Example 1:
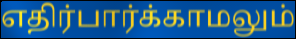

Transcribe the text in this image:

எதிர்பார்க்காமலும்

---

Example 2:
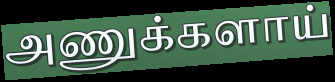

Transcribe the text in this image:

அணுக்களாய்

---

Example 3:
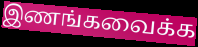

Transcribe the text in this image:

இணங்கவைக்க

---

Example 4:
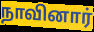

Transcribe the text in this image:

நாவினார்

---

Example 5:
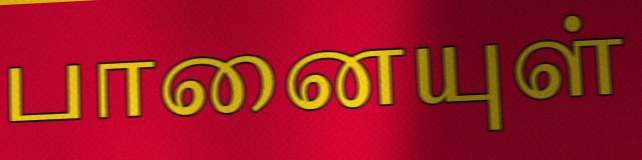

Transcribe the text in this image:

பானையுள்